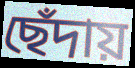
ছেঁদায়